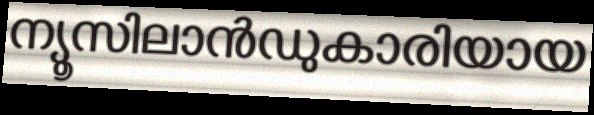
ന്യൂസിലാൻഡുകാരിയായ